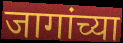
जागांच्या